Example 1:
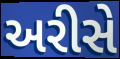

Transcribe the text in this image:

અરીસે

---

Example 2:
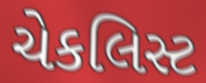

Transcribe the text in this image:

ચેકલિસ્ટ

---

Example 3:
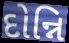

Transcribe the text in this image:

દોન્નિ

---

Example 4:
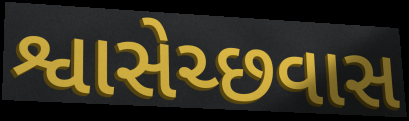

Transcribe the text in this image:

શ્વાસેચ્છવાસ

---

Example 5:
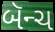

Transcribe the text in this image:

બૅન્ચ